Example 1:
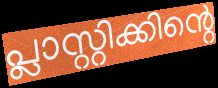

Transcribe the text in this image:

പ്ലാസ്റ്റിക്കിന്റെ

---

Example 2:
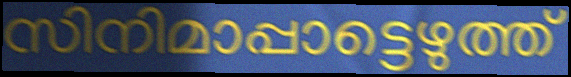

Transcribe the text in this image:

സിനിമാപ്പാട്ടെഴുത്ത്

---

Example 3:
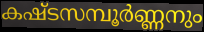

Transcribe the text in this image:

കഷ്ടസമ്പൂർണ്ണനും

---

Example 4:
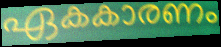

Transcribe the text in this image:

ഏകകാരണം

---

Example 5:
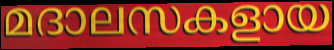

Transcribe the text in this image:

മദാലസകളായ